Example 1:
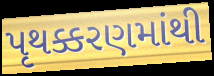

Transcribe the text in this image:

પૃથક્કરણમાંથી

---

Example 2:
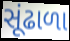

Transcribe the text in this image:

સૂંઢાળા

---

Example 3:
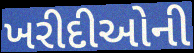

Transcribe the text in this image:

ખરીદીઓની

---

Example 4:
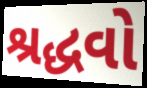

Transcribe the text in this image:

શ્રદ્ધવો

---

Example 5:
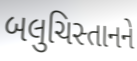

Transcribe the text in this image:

બલુચિસ્તાનને